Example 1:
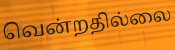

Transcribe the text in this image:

வென்றதில்லை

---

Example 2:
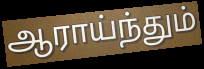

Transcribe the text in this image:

ஆராய்ந்தும்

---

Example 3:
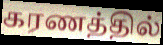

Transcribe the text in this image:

கரணத்தில்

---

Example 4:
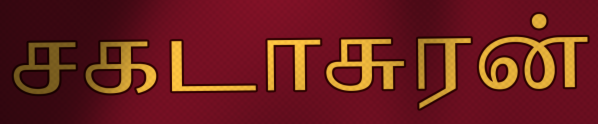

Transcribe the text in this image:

சகடாசுரன்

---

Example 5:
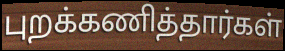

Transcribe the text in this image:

புறக்கணித்தார்கள்